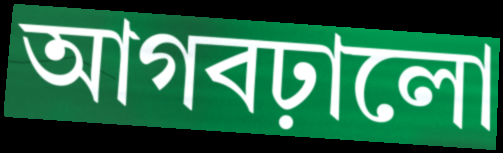
আগবঢ়ালো